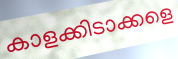
കാളക്കിടാക്കളെ